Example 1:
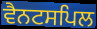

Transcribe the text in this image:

ਵੈਨਟਸਪਿਲ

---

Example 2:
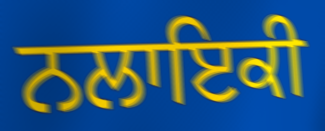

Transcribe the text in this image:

ਨਲਾਇਕੀ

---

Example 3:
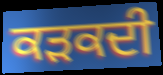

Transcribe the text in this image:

ਕੜਕਦੀ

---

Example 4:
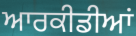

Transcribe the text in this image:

ਆਰਕੀਡੀਆਂ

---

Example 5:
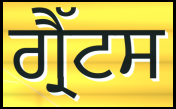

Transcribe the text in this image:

ਗ੍ਰੈੱਟਸ